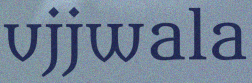
ujjwala